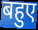
बहुए